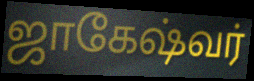
ஜாகேஷ்வர்